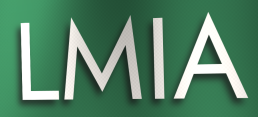
LMIA